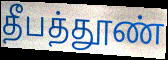
தீபத்தூண்